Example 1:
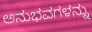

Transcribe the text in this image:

ಅನುಭವಗಳನ್ನು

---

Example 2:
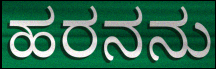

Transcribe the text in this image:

ಹರನನು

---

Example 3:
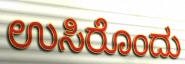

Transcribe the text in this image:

ಉಸಿರೊಂದು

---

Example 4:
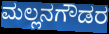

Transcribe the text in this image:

ಮಲ್ಲನಗೌಡರ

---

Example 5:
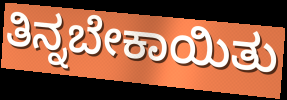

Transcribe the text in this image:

ತಿನ್ನಬೇಕಾಯಿತು